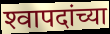
श्‍वापदांच्या